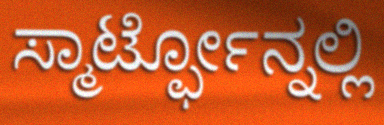
ಸ್ಮಾರ್ಟ್ಫೋನ್ನಲ್ಲಿ